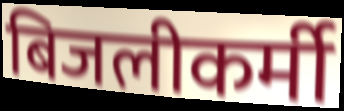
बिजलीकर्मी